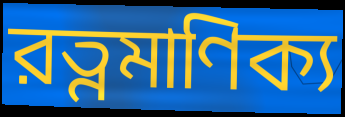
রত্নমাণিক্য